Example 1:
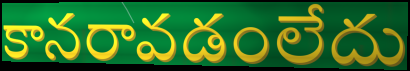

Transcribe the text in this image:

కానరావడంలేదు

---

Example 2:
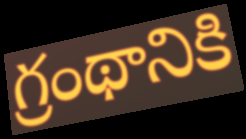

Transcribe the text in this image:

గ్రంథానికి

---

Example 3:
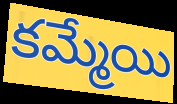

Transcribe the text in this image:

కమ్మేయి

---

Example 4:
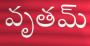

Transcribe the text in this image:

వృతమ్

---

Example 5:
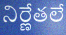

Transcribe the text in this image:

నిర్ణేతలే